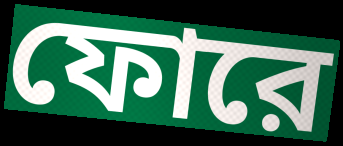
ফোরে